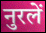
नुरलें